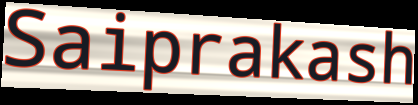
Saiprakash